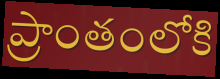
ప్రాంతంలోకి